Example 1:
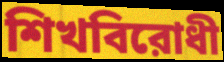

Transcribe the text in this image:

শিখবিরোধী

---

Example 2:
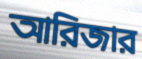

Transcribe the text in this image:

আরিজার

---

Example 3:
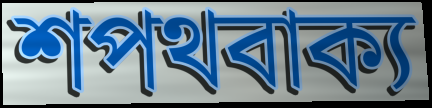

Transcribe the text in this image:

শপথবাক্য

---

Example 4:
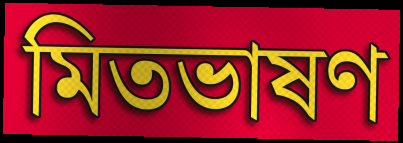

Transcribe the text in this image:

মিতভাষণ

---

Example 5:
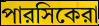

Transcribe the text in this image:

পারসিকেরা